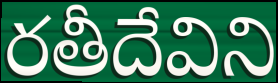
రతీదేవిని